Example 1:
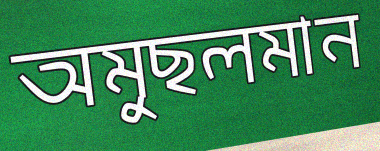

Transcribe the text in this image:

অমুছলমান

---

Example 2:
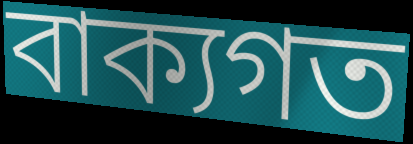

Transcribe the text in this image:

বাক্যগত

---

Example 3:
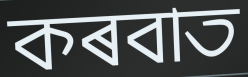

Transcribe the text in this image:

কৰবাত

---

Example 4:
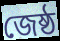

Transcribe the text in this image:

জেষ্ঠ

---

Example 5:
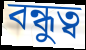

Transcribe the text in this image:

বন্ধুত্ব